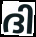
ദി